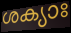
ശക്യാഃ